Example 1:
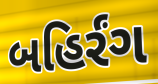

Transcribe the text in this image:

બહિર્રંગ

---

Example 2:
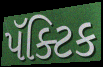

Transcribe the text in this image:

પૅક્ટિક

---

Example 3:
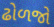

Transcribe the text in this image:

ઢોળજો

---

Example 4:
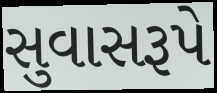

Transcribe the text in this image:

સુવાસરૂપે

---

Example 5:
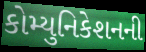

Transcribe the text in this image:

કોમ્યુનિકેશનની